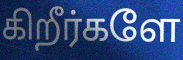
கிறீர்களே